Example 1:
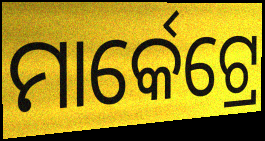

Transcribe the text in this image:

ମାର୍କେଟ୍ରେ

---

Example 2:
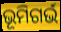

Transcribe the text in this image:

ଭୂମିଗର୍ଭ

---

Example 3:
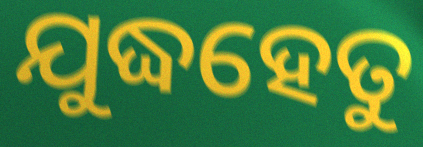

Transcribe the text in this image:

ଯୁଦ୍ଧହେତୁ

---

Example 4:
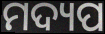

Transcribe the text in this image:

ମଦ୍ୟପ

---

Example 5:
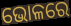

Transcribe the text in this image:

ଭୋଳରେ